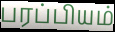
பரப்பியம்